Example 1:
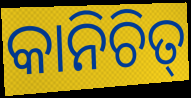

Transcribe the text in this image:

କାନିଚିତ୍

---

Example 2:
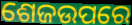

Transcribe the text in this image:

ଶେଜଉପରେ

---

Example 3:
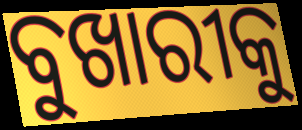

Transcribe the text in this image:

ବୁଖାରୀକୁ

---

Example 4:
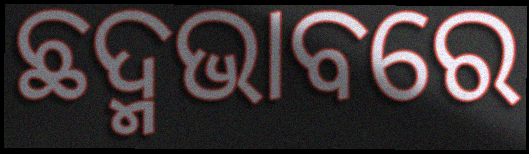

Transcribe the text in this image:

ଛଦ୍ମଭାବରେ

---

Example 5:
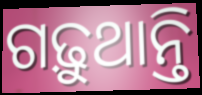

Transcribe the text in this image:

ଗଢ଼ୁଥାନ୍ତି